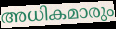
അധികമാരും